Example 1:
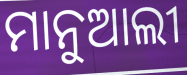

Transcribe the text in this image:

ମାନୁଆଲୀ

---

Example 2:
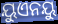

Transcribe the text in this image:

ୟୁଏନୟୁ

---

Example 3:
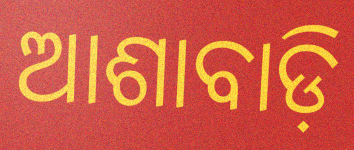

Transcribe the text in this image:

ଆଶାବାଡ଼ି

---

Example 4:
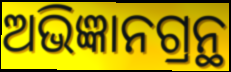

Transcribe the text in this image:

ଅଭିଜ୍ଞାନଗ୍ରନ୍ଥ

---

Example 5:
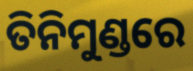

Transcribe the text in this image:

ତିନିମୁଣ୍ଡରେ